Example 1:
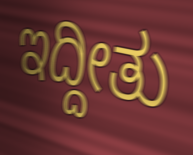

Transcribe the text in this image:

ಇದ್ದೀತು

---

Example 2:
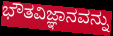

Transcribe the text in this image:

ಭೌತವಿಜ್ಞಾನವನ್ನು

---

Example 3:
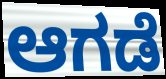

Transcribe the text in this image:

ಆಗಡೆ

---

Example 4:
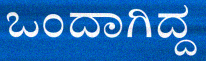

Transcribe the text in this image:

ಒಂದಾಗಿದ್ದ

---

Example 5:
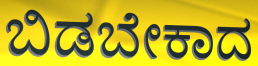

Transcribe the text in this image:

ಬಿಡಬೇಕಾದ